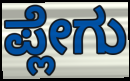
ಪ್ಲೇಗು